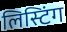
लिस्‍टिंग